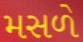
મસળે